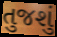
તુજશું